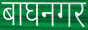
बाघनगर